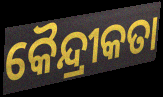
କୈନ୍ଦ୍ରୀକତା